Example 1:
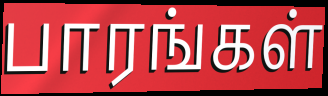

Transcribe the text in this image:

பாரங்கள்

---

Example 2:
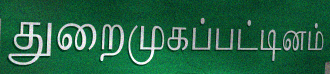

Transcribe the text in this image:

துறைமுகப்பட்டினம்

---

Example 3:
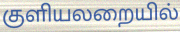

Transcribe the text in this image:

குளியலறையில்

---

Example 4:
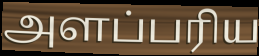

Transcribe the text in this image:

அளப்பரிய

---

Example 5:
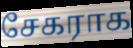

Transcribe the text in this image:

சேகராக